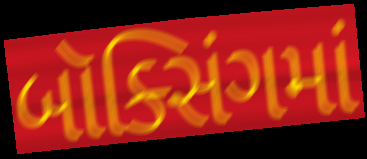
બૉક્સિંગમાં